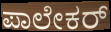
ಪಾಲೇಕರ್